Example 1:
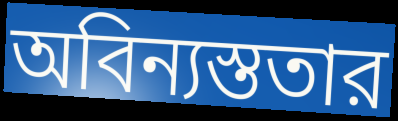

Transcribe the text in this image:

অবিন্যস্ততার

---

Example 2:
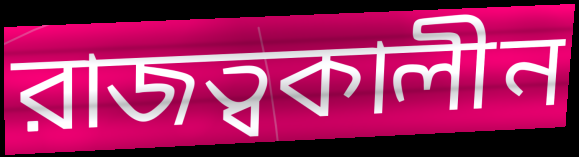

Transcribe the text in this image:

রাজত্বকালীন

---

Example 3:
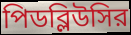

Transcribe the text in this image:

পিডব্লিউসির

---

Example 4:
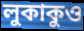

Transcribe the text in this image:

লুকাকুও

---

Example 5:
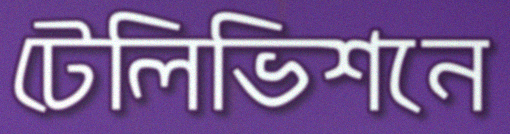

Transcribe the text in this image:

টেলিভিশনে